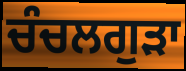
ਚੰਚਲਗੁੜਾ